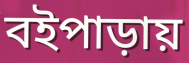
বইপাড়ায়